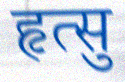
हृत्सु